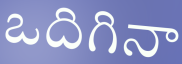
ఒదిగినా